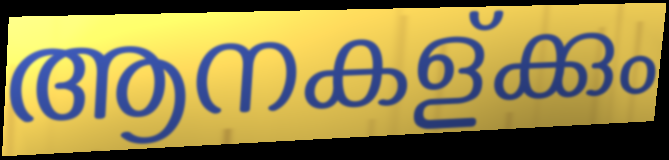
ആനകള്ക്കും